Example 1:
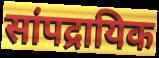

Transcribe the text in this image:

सांपद्रायिक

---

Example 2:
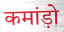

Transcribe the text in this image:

कमांड़ो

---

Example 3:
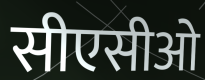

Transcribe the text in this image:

सीएसीओ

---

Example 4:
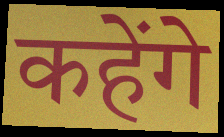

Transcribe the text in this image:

कहेंगे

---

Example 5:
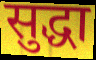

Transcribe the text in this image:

सुद्धा